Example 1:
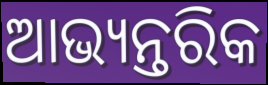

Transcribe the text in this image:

ଆଭ୍ୟନ୍ତରିକ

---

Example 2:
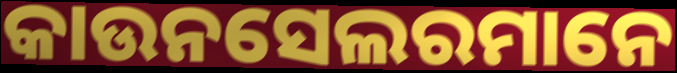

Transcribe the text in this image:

କାଉନସେଲରମାନେ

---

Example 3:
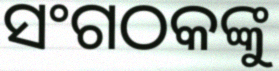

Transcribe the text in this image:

ସଂଗଠକଙ୍କୁ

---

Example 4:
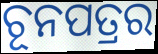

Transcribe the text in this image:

ଚୂନପତ୍ରର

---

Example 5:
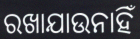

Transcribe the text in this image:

ରଖାଯାଉନାହିଁ